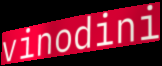
vinodini